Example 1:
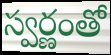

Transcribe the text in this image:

స్వర్ణంతో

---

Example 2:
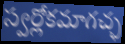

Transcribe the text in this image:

స్వర్లోకమాగచ్ఛ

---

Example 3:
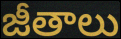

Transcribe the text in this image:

జీతాలు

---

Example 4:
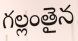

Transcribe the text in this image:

గల్లంతైన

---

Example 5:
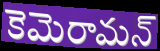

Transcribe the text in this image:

కెమెరామన్